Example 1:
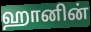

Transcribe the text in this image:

ஹானின்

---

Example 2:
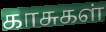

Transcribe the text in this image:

காசுகள்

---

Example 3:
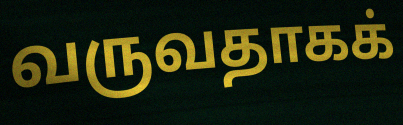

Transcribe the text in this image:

வருவதாகக்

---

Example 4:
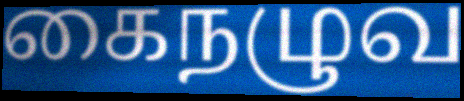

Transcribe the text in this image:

கைநழுவ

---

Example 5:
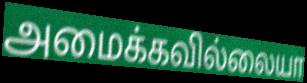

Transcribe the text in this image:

அமைக்கவில்லையா